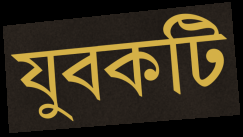
যুবকটি